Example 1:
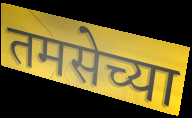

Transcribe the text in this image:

तमसेच्या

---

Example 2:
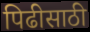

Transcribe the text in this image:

पिढीसाठी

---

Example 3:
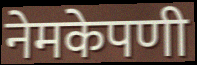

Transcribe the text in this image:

नेमकेपणी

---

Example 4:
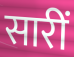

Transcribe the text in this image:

सारीं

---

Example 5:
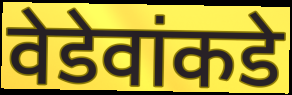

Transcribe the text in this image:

वेडेवांकडे